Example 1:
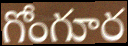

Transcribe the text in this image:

గోంగూర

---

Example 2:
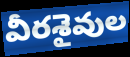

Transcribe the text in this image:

వీరశైవుల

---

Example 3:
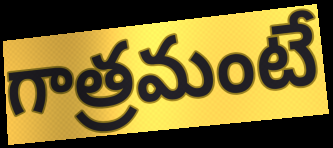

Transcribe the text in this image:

గాత్రమంటే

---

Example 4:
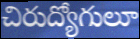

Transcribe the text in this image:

చిరుద్యోగులూ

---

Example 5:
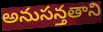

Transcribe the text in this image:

అనుసన్తతాని